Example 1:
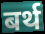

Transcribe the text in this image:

बर्थ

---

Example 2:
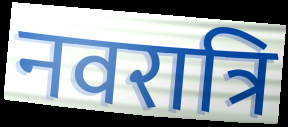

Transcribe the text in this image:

नवरात्रि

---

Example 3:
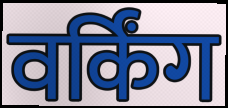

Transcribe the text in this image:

वर्किंग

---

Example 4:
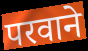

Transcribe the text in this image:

परवाने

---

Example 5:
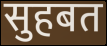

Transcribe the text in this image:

सुहबत